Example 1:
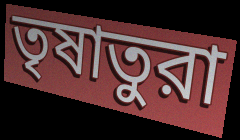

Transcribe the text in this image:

তৃষাতুরা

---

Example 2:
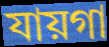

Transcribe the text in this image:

যায়গা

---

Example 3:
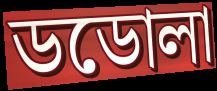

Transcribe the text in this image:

ডডোলা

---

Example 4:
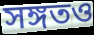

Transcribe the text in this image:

সঙ্গতও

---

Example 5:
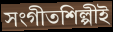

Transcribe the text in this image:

সংগীতশিল্পীই